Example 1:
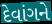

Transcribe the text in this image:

દેવાંગને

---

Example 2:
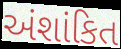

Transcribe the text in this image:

અંશાંકિત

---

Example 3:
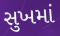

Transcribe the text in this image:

સુખમાં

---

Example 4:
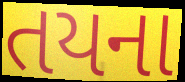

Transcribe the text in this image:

તયના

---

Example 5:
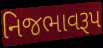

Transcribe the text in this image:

નિજભાવરૂપ